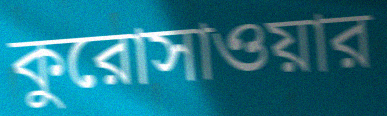
কুরোসাওয়ার